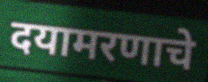
दयामरणाचे